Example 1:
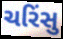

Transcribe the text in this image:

ચરિંસુ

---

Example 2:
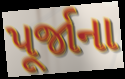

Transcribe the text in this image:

પૂર્જાના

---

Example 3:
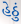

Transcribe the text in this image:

હેઠું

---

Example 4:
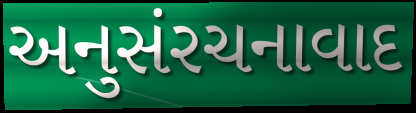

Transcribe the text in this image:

અનુસંરચનાવાદ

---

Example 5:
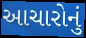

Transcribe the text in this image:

આચારોનું